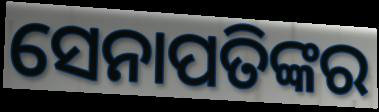
ସେନାପତିଙ୍କର